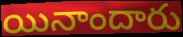
యినాందారు